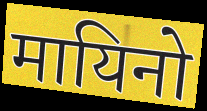
मायिनो